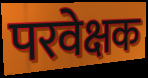
परवेक्षक